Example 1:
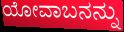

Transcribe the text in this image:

ಯೋವಾಬನನ್ನು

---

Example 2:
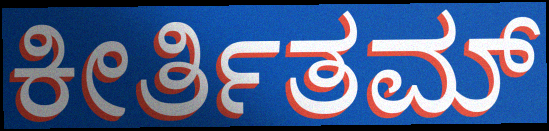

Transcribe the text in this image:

ಕೀರ್ತಿತಮ್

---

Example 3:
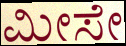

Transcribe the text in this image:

ಮೀಸೇ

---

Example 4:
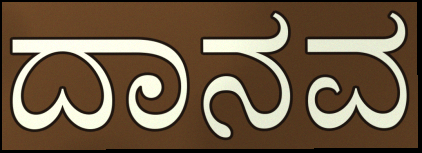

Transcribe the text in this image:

ದಾನವ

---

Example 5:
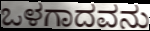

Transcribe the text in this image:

ಒಳಗಾದವನು